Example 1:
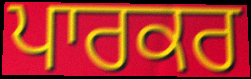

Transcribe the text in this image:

ਪਾਰਕਰ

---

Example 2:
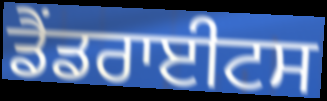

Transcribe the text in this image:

ਡੈਂਡਰਾਈਟਸ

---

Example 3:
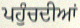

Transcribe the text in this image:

ਪਹੁੰਚਦੀਆਂ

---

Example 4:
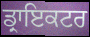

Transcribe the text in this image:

ਡ੍ਰਾਇਕਟਰ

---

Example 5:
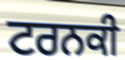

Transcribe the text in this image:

ਟਰਨਕੀ